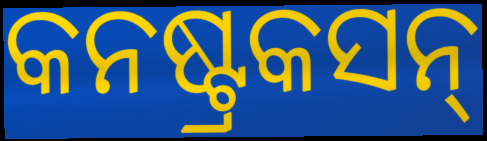
କନଷ୍ଟ୍ରକସନ୍